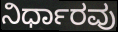
ನಿರ್ಧಾರವು